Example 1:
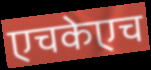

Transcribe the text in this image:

एचकेएच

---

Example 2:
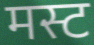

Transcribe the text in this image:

मस्‍ट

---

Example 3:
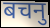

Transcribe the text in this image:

बचनु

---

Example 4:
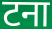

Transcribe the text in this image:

टना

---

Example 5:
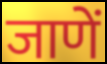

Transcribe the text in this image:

जाणें